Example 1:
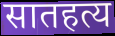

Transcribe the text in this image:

सातहत्य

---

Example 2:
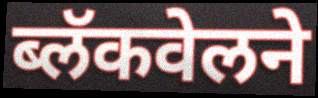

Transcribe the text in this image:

ब्लॅकवेलने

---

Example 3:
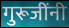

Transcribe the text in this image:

गुरूजींनी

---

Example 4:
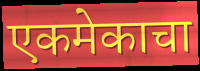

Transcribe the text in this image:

एकमेकाचा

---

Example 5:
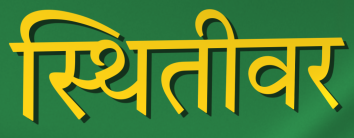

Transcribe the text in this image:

स्थितीवर